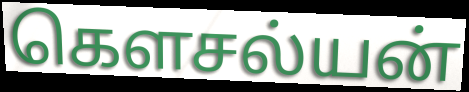
கௌசல்யன்